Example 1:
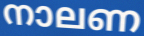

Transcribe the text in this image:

നാലണ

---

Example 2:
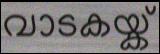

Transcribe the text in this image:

വാടകയ്ക്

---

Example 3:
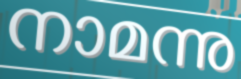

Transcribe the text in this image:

നാമന്നു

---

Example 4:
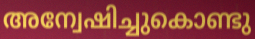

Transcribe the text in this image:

അന്വേഷിച്ചുകൊണ്ടു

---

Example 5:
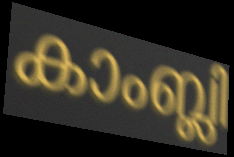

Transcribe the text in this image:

കാംബ്ലി